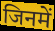
जिनमें